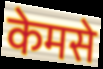
केमसे